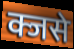
क्जसे